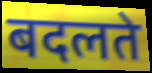
बदलते